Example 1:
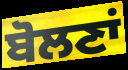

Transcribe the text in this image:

ਬੋਲਣਾਂ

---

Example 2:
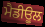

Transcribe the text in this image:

ਮੈਡੀਊਲ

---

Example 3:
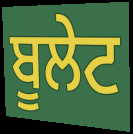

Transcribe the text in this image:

ਬੂਲੇਟ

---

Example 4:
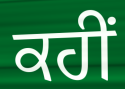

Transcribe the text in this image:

ਕਹੀਂ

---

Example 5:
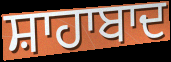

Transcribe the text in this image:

ਸ਼ਾਹਾਬਾਦ